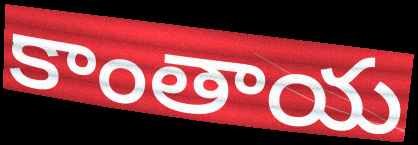
కాంతాయ